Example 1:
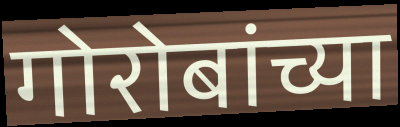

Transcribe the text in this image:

गोरोबांच्या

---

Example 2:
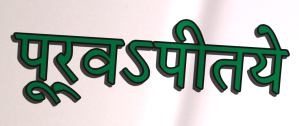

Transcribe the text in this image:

पूर्वऽपीतये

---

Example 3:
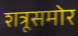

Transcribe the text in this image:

शत्रूसमोर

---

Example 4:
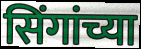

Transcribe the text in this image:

सिंगांच्या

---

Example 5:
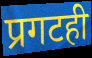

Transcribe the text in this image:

प्रगटही